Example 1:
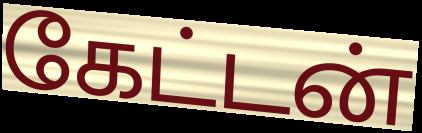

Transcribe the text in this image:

கேட்டன்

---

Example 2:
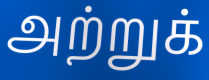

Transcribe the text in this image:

அற்றுக்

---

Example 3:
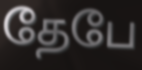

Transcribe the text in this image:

தேபே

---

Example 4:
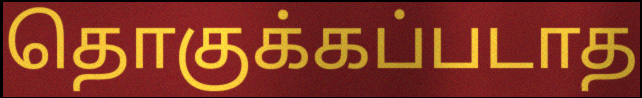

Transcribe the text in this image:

தொகுக்கப்படாத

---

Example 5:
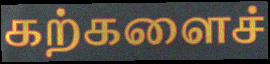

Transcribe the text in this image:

கற்களைச்